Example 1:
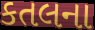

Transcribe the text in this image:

કતલના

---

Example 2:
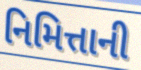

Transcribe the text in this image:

નિમિત્તાની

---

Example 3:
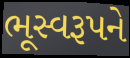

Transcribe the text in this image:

ભૂસ્વરૂપને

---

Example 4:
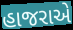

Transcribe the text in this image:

હાજરાએ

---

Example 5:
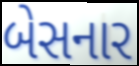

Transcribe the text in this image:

બેસનાર